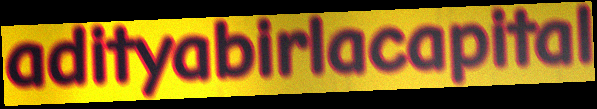
adityabirlacapital